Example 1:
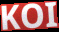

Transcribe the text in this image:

KOI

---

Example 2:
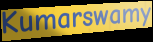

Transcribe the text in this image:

Kumarswamy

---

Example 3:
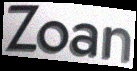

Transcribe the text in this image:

Zoan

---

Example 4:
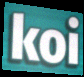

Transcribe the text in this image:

koi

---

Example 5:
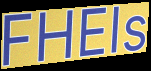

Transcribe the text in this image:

FHEIs